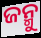
ଜନ୍ମୁ